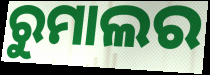
ରୁମାଲର